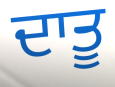
ਦਾਤੂ